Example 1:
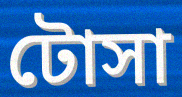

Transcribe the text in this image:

টোসা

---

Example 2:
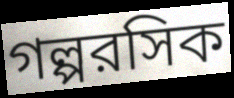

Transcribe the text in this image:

গল্পরসিক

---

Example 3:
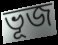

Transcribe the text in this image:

ভূজ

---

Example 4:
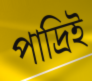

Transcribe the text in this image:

পাদ্রিই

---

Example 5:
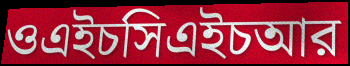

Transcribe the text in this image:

ওএইচসিএইচআর